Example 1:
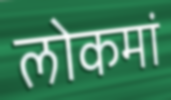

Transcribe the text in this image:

लोकमां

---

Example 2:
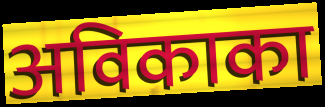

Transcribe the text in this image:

अविकाका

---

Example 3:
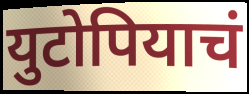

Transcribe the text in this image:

युटोपियाचं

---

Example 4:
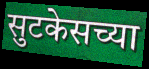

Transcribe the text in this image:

सुटकेसच्या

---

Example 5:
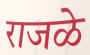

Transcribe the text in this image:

राजळे